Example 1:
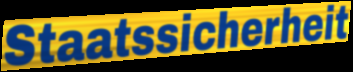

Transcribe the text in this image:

Staatssicherheit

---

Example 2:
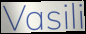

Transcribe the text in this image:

Vasili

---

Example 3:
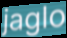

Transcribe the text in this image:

jaglo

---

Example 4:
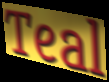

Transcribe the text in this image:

Teal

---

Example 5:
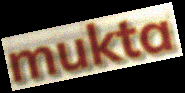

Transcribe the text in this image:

mukta